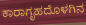
ಕಾರಾಗೃಹದೊಳಗಿನ